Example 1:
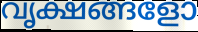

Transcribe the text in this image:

വൃക്ഷങ്ങളോ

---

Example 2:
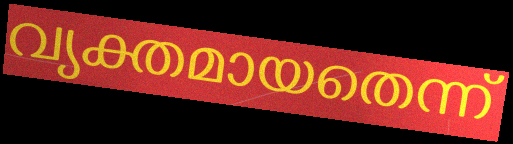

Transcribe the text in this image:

വ്യക്തമായതെന്ന്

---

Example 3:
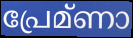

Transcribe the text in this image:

പ്രേമ്ണാ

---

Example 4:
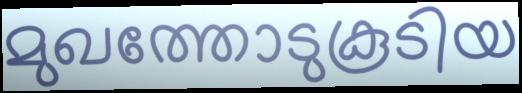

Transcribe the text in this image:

മുഖത്തോടുകൂടിയ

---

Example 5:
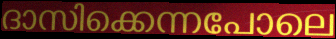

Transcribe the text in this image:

ദാസിക്കെന്നപോലെ